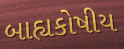
બાહ્યકોષીય